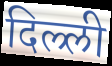
दिल्ली